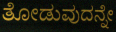
ತೋಡುವುದನ್ನೇ